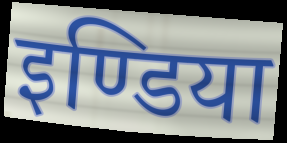
इण्डिया